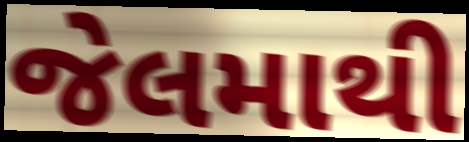
જેલમાથી